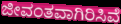
ಜೀವಂತವಾಗಿರಿಸಿವೆ